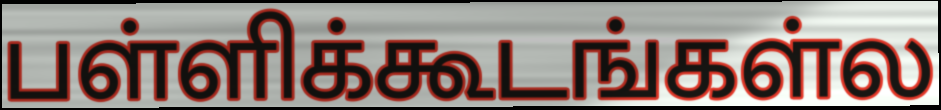
பள்ளிக்கூடங்கள்ல